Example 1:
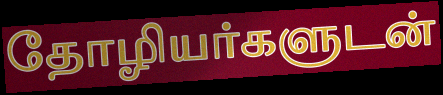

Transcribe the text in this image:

தோழியர்களுடன்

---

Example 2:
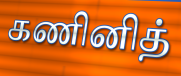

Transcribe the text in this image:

கணினித்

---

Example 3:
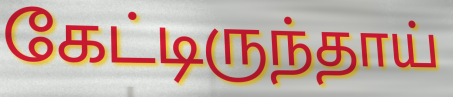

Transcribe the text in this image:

கேட்டிருந்தாய்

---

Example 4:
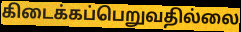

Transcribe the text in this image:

கிடைக்கப்பெறுவதில்லை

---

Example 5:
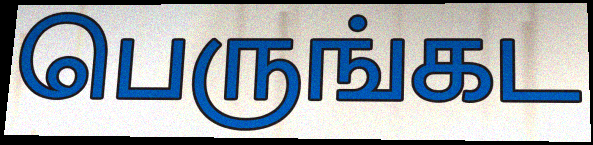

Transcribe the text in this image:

பெருங்கட